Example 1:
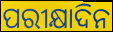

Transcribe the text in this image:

ପରୀକ୍ଷାଦିନ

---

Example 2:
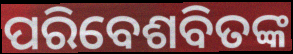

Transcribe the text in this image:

ପରିବେଶବିତଙ୍କ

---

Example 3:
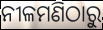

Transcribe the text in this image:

ନୀଳମଣିଠାରୁ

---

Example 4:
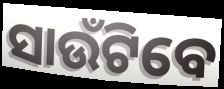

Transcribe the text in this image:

ସାଉଁଟିବେ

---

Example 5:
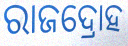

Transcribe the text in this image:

ରାଜଦ୍ରୋହ